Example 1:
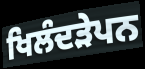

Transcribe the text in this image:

ਖਿਲੰਦੜੇਪਨ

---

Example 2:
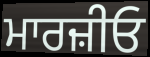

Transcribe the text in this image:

ਮਾਰਜ਼ੀਓ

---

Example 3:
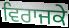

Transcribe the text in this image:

ਵਿਰਾਜਕੇ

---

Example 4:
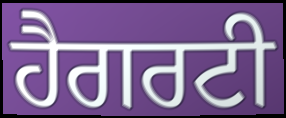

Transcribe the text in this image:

ਹੈਗਰਟੀ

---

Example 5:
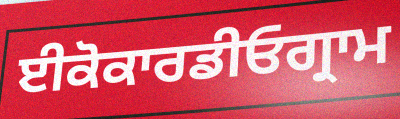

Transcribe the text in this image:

ਈਕੋਕਾਰਡੀਓਗ੍ਰਾਮ